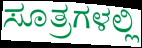
ಸೂತ್ರಗಳಲ್ಲಿ